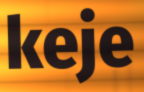
keje